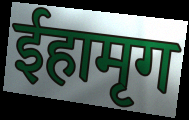
ईहामृग